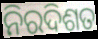
ନିରଦିଶତ